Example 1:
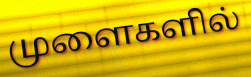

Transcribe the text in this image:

முளைகளில்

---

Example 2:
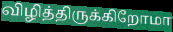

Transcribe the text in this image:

விழித்திருக்கிறோமா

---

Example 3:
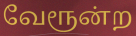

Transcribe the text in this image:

வேரூன்ற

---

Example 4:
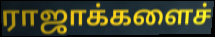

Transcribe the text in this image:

ராஜாக்களைச்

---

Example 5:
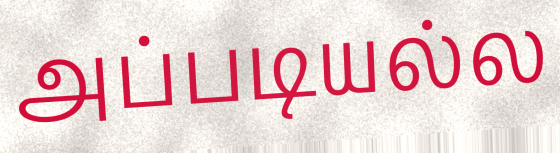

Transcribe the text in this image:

அப்படியல்ல